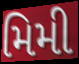
મિમી